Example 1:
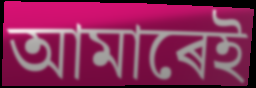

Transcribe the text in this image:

আমাৰেই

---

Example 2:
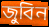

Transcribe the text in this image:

জুবিন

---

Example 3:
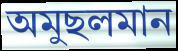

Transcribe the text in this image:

অমুছলমান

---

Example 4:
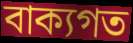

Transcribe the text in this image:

বাক্যগত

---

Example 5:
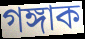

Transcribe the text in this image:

গঙ্গাক